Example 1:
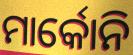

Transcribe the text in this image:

ମାର୍କୋନି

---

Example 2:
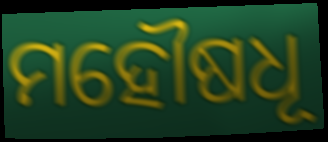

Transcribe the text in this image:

ମହୌଷଧୂ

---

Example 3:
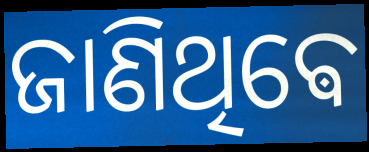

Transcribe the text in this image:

ଜାଣିଥିଵେ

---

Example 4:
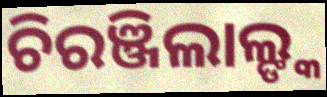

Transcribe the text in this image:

ଚିରଞ୍ଜିଲାଲ୍ଙ୍କ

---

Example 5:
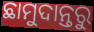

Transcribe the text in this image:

ଛାମୁଦାନ୍ତରୁ